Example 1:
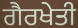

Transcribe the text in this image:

ਗੈਰਖੇਤੀ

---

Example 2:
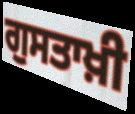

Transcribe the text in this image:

ਗੁਸਤਾਖ਼ੀ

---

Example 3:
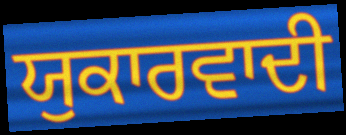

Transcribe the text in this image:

ਯੁਕਾਰਵਾਦੀ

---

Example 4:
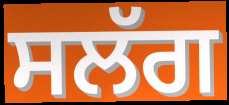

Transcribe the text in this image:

ਸਲੱਗ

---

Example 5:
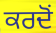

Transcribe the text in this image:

ਕਰਦੋਂ